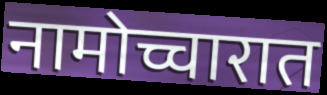
नामोच्चारात